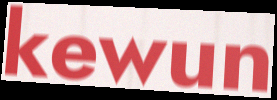
kewun